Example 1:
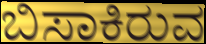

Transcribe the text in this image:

ಬಿಸಾಕಿರುವ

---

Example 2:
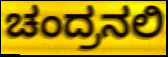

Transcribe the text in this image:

ಚಂದ್ರನಲಿ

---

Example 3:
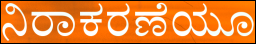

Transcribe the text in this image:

ನಿರಾಕರಣೆಯೂ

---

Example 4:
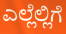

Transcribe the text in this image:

ಎಲ್ಲೆಲ್ಲಿಗೆ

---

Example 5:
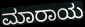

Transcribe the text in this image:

ಮಾರಾಯ